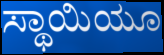
ಸ್ಥಾಯಿಯೂ